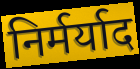
निर्मर्याद